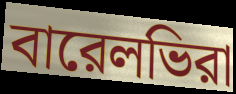
বারেলভিরা